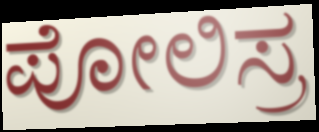
ಪೋಲಿಸ್ರ